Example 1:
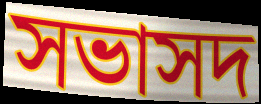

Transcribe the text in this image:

সভাসদ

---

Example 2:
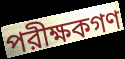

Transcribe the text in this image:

পরীক্ষকগণ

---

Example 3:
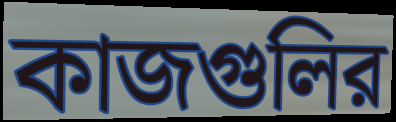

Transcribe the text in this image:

কাজগুলির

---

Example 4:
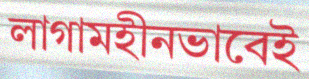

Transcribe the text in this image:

লাগামহীনভাবেই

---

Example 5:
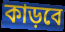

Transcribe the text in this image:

কাড়বে